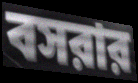
বসরার